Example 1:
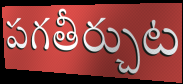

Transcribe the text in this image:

పగతీర్చుట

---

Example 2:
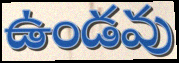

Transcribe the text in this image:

ఉండవు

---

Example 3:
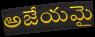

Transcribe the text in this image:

అజేయమై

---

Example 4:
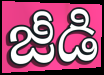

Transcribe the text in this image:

జీడి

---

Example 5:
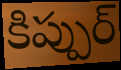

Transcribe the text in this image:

కిప్పుర్